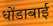
धोंडाबाई